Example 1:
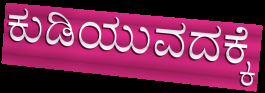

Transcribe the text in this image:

ಕುಡಿಯುವದಕ್ಕೆ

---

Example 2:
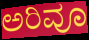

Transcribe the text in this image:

ಅರಿವೂ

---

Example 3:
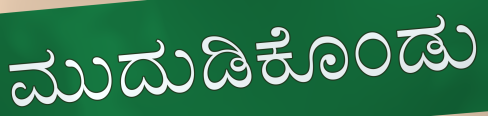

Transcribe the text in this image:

ಮುದುಡಿಕೊಂಡು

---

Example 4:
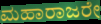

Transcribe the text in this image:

ಮಹಾರಾಜರೇ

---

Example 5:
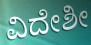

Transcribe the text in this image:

ವಿದೇಶೀ